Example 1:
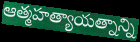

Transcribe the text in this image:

ఆత్మహత్యాయత్నాన్ని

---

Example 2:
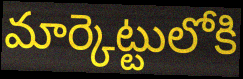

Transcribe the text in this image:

మార్కెట్టులోకి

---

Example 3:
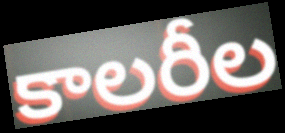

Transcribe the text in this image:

కాలరీల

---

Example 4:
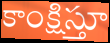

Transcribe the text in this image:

కాంక్షిస్తూ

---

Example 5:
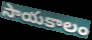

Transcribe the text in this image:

సాయకాలం